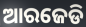
ଆରଜେଡି